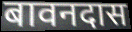
बावनदास